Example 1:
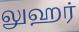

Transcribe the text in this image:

லுஹர்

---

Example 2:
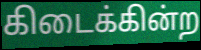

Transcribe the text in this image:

கிடைக்கின்ற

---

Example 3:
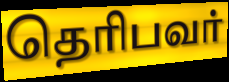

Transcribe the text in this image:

தெரிபவர்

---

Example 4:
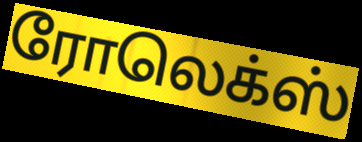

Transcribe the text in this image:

ரோலெக்ஸ்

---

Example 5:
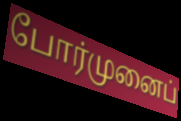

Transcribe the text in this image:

போர்முனைப்